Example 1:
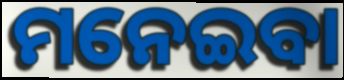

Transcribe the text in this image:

ମନେଇବା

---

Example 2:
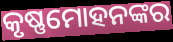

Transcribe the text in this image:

କୃଷ୍ଣମୋହନଙ୍କର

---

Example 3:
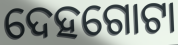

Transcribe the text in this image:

ଦେହଗୋଟା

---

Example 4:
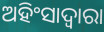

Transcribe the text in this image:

ଅହିଂସାଦ୍ୱାରା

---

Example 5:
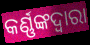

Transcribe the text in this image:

କର୍ଣ୍ଣଙ୍କଦ୍ୱାରା